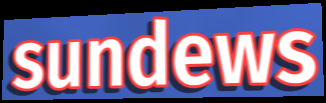
sundews